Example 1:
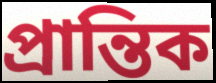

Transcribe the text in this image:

প্রান্তিক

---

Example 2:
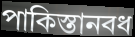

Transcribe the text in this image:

পাকিস্তানবধ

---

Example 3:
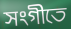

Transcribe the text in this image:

সংগীতে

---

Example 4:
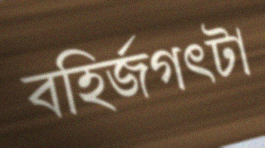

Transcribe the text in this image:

বহির্জগৎটা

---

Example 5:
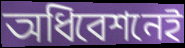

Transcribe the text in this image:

অধিবেশনেই